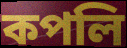
কপলি